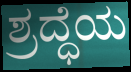
ಶ್ರದ್ಧೆಯ